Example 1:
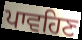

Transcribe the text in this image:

ਪਾਵਹਿਣ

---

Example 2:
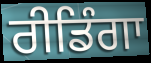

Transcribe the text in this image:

ਰੀਡਿੰਗਾ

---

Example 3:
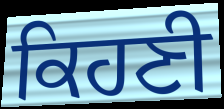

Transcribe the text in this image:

ਕਿਹਣੀ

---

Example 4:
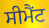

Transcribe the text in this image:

ਸੀਮੈਂਟ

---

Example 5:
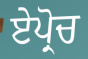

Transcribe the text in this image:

ਏਪ੍ਰੋਚ